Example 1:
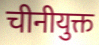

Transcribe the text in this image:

चीनीयुक्त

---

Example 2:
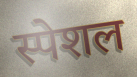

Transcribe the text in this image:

स्‍पेशल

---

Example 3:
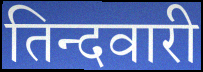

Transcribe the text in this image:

तिन्दवारी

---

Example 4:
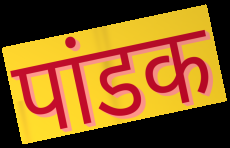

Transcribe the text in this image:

पांडक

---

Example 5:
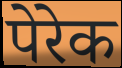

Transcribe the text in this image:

पेरेक